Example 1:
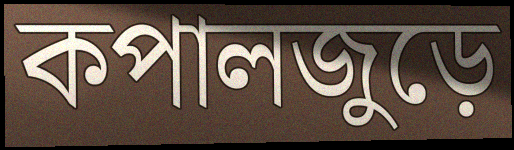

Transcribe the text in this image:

কপালজুড়ে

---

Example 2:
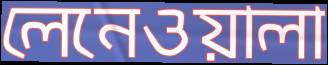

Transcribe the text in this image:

লেনেওয়ালা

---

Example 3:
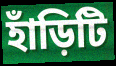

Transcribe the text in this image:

হাঁড়িটি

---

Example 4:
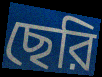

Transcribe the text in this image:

ছেরি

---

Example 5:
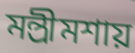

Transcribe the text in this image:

মন্ত্রীমশায়